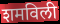
शमविली